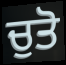
ਚੁਤੋ